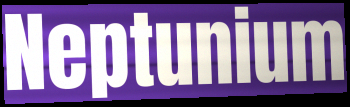
Neptunium